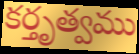
కర్తృత్వము